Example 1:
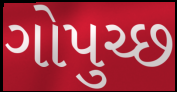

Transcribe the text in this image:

ગોપુચ્છ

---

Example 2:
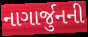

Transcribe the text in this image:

નાગાર્જુનની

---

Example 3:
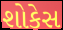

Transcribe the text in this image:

શોકેસ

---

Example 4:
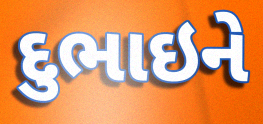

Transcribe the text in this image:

દુભાઇને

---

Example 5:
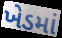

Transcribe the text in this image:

ખેડમાં